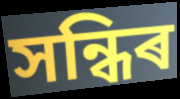
সন্ধিৰ